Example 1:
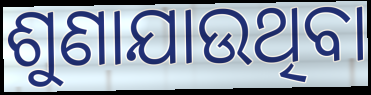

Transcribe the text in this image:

ଶୁଣାଯାଉଥିବା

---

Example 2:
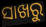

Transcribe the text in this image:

ସାଖରୁ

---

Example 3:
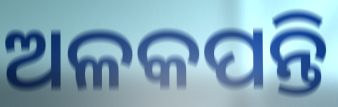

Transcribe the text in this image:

ଅଳକପନ୍ତି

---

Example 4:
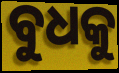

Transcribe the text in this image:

ବୁଧକୁ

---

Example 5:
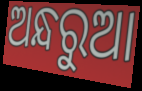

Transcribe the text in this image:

ଅନ୍ଧରୁଆ